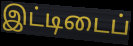
இட்டிடைப்